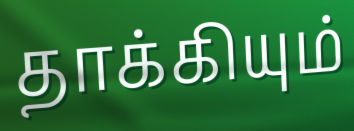
தாக்கியும்